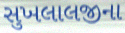
સુખલાલજીના